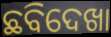
ଛବିଦେଖା